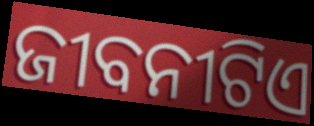
ଜୀବନୀଟିଏ